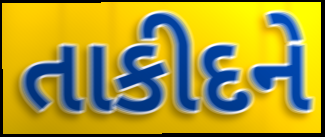
તાકીદને